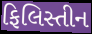
ફિલિસ્તીન